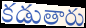
కడుతారు